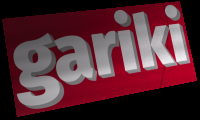
gariki